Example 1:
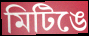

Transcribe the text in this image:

মিটিঙে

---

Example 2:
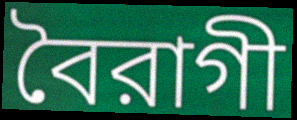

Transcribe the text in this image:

বৈরাগী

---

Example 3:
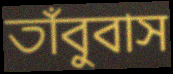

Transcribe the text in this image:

তাঁবুবাস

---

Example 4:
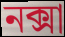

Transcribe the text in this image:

নক্সা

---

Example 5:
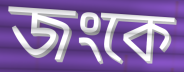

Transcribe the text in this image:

জংকে